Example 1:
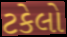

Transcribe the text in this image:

ટકેલો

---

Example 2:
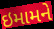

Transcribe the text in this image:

ઇમામને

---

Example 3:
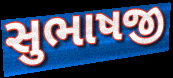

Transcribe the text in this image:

સુભાષજી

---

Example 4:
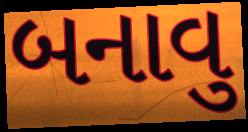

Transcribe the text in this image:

બનાવુ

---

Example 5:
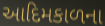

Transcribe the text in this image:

આદિમકાળના